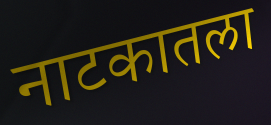
नाटकातला